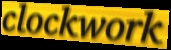
clockwork